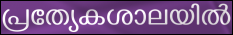
പ്രത്യേകശാലയിൽ